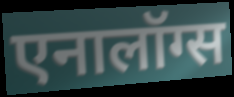
एनालॉग्स